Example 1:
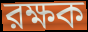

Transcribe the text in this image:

রক্ষক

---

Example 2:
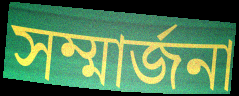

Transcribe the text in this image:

সম্মার্জনা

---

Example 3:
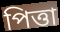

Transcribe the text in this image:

পিত্তা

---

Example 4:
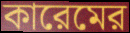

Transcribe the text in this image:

কারেমের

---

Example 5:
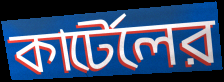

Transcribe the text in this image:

কার্টেলের